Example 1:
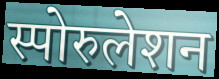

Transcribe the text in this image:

स्पोरुलेशन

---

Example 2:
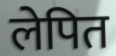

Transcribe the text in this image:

लेपित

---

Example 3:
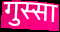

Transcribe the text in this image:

गुस्सा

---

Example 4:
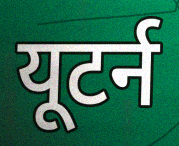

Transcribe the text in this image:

यूटर्न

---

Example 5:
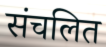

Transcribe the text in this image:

संचलित